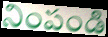
నింపండి